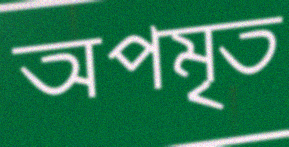
অপমৃত